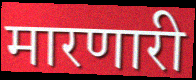
मारणारी